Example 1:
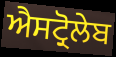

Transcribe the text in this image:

ਐਸਟ੍ਰੋਲੇਬ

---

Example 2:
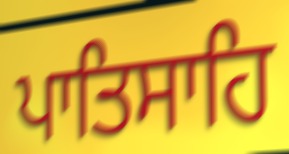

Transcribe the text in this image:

ਪਾਤਿਸਾਹਿ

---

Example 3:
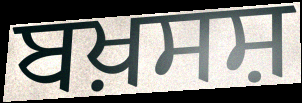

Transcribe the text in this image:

ਬਖ਼ਸਸ਼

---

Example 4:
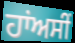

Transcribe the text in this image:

ਹਾਂਅਸੀਂ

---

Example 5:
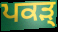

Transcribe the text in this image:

ਪਕੜ੍